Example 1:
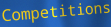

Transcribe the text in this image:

Competitions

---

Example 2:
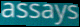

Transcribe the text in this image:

assays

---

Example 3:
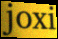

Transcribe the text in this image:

joxi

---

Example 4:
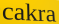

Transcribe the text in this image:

cakra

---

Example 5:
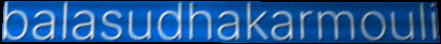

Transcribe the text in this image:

balasudhakarmouli